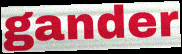
gander